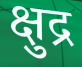
क्षुद्र